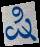
ಷಿ